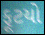
ફૂટયો